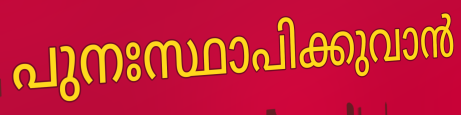
പുനഃസ്ഥാപിക്കുവാൻ